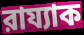
রায্যাক